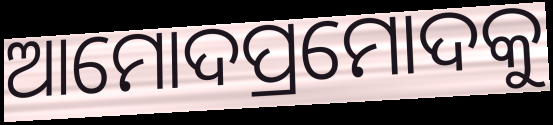
ଆମୋଦପ୍ରମୋଦକୁ